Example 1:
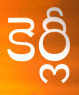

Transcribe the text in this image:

కెర్లీ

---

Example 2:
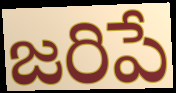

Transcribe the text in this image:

జరిపే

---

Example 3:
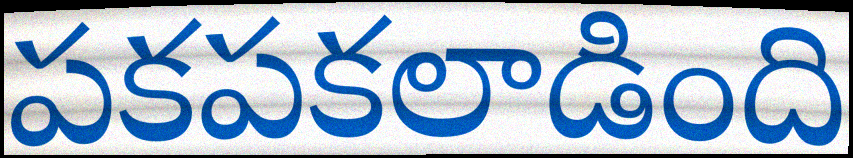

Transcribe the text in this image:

పకపకలాడింది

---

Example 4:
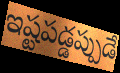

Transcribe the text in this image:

ఇష్టపడ్డప్పుడే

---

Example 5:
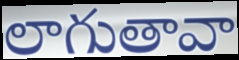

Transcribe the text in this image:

లాగుతావా